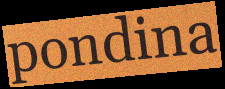
pondina